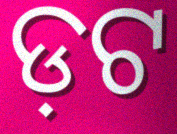
ଡ଼ଟ